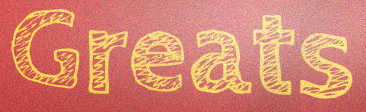
Greats